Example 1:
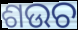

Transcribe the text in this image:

ଶଉଚ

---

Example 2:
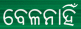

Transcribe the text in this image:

ବେଳନାହିଁ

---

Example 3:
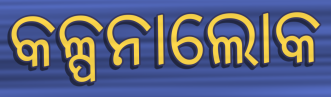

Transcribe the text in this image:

କଳ୍ପନାଲୋକ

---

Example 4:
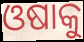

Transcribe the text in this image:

ଓଷାକୁ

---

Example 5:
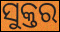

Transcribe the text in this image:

ସୁକ୍ତର